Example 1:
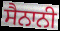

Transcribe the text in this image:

ਸੈਨਾਨੀ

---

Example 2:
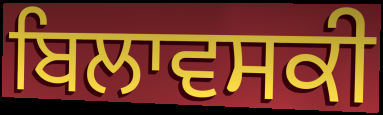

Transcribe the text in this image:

ਬਿਲਾਵਸਕੀ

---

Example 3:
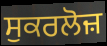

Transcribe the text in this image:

ਸੁਕਰਲੋਜ਼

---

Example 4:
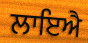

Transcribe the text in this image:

ਲਾਇਐ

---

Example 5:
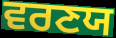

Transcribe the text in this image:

ਵਰਣਯ